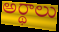
అర్థాలు